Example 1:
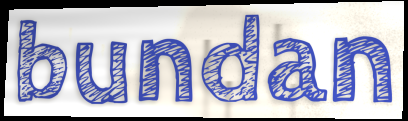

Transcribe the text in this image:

bundan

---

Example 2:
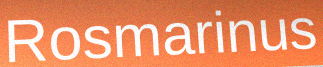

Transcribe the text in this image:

Rosmarinus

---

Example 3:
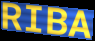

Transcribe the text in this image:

RIBA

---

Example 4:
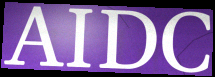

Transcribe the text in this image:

AIDC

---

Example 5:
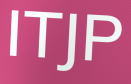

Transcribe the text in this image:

ITJP